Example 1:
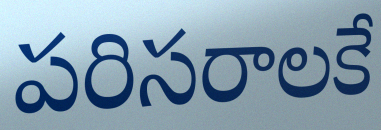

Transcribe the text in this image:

పరిసరాలకే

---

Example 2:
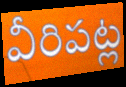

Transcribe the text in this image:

వీరిపట్ల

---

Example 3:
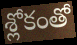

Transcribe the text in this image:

శ్లోకంతో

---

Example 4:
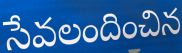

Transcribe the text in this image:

సేవలందించిన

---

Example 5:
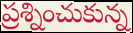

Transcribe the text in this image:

ప్రశ్నించుకున్న